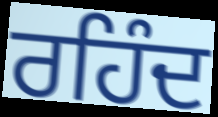
ਰਹਿੰਦ